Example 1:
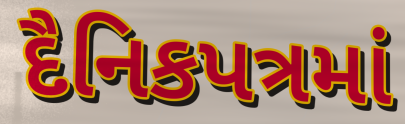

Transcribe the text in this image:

દૈનિકપત્રમાં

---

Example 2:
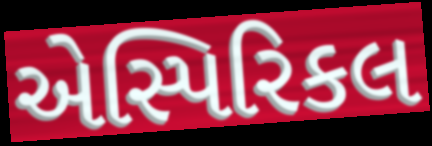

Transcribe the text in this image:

એસ્પિરિકલ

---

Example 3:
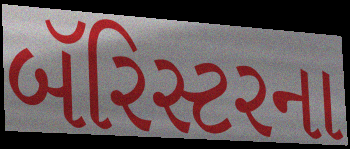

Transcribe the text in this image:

બૅરિસ્ટરના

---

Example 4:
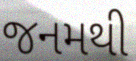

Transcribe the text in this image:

જનમથી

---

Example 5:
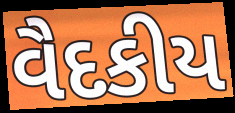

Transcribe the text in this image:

વૈદકીય